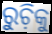
ରୁଚ଼ିକୁ